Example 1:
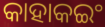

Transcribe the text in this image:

କାହାକଇଂ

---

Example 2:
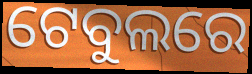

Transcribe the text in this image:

ଟେବୁଲରେ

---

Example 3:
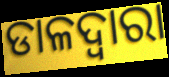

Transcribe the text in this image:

ଡାଳଦ୍ୱାରା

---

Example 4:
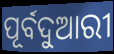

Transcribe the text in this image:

ପୂର୍ବଦୁଆରୀ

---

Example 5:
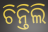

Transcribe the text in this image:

ଚିନ୍ତିଲି